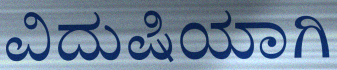
ವಿದುಷಿಯಾಗಿ